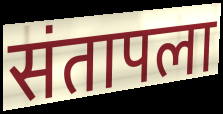
संतापला